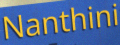
Nanthini